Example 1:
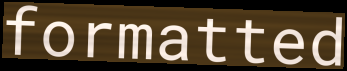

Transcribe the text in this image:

formatted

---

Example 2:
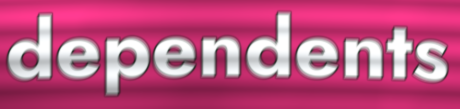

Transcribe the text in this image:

dependents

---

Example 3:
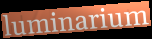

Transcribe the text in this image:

luminarium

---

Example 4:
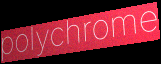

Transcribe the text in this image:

polychrome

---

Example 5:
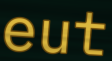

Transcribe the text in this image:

eut